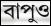
বাপুও